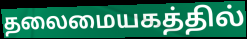
தலைமையகத்தில்